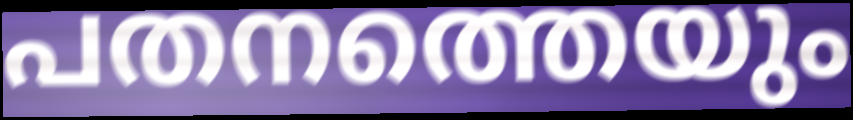
പതനത്തെയും